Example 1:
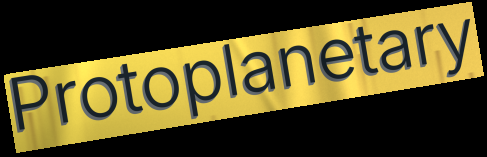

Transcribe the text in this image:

Protoplanetary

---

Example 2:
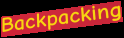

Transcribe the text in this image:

Backpacking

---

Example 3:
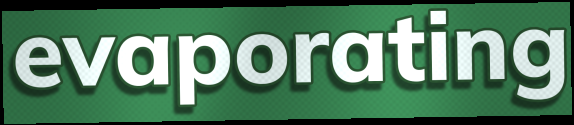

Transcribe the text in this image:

evaporating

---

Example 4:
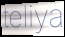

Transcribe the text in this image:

teliya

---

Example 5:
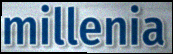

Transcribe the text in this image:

millenia